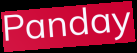
Panday